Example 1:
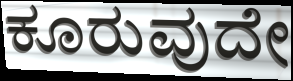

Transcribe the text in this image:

ಕೂರುವುದೇ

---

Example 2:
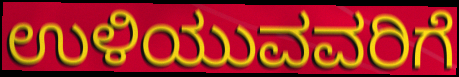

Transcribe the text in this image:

ಉಳಿಯುವವರಿಗೆ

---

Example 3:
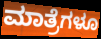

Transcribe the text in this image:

ಮಾತ್ರೆಗಳೂ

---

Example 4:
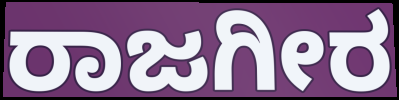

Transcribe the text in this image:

ರಾಜಗೀರ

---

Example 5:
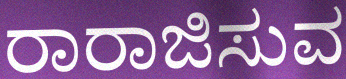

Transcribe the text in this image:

ರಾರಾಜಿಸುವ